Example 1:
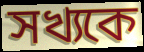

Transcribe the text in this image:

সখ্যকে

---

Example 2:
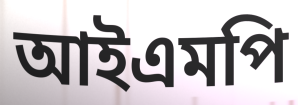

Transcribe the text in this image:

আইএমপি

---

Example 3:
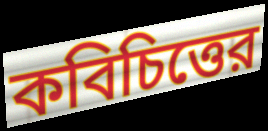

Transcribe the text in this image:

কবিচিত্তের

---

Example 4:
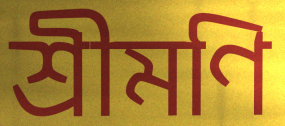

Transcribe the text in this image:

শ্রীমণি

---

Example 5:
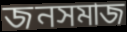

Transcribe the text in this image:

জনসমাজ